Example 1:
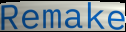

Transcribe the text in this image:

Remake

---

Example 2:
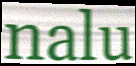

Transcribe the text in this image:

nalu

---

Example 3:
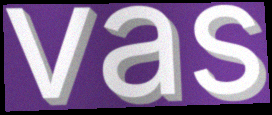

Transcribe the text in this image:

vas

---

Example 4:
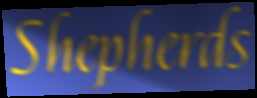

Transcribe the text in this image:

Shepherds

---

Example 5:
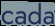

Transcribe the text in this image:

cada